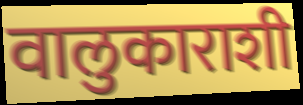
वालुकाराशी